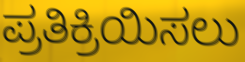
ಪ್ರತಿಕ್ರಿಯಿಸಲು